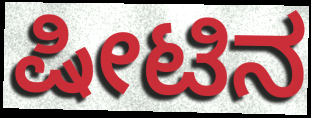
ಷೀಟಿನ